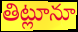
తిట్లూనూ